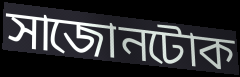
সাজোনটোক